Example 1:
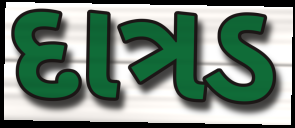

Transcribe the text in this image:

દાત્રડ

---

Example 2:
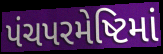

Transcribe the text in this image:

પંચપરમેષ્ટિમાં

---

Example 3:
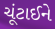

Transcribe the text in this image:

ચૂંટાઈને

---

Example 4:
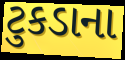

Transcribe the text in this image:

ટુકડાના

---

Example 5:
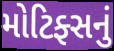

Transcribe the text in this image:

મોટિફ્સનું